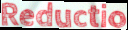
Reductio